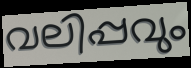
വലിപ്പവും